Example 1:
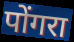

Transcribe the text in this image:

पोंगरा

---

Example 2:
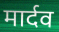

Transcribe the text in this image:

मार्दव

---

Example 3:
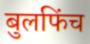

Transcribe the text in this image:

बुलफिंच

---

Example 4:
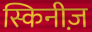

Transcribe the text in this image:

स्किनीज़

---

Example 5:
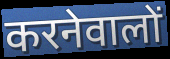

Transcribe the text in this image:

करनेवालों